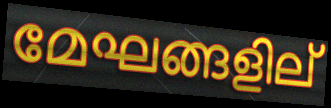
മേഘങ്ങളില്